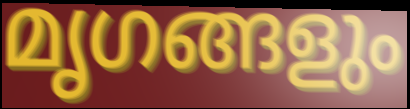
മൃഗങ്ങളും